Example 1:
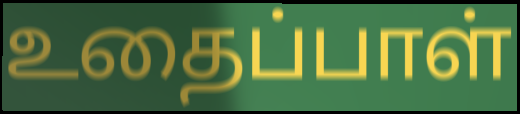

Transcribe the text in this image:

உதைப்பாள்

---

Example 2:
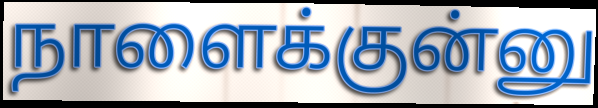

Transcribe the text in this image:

நாளைக்குன்னு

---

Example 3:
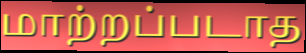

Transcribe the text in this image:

மாற்றப்படாத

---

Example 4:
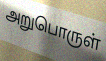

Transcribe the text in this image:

அறுபொருள்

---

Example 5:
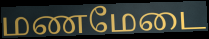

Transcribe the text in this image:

மணமேடை